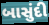
બાસુંદી